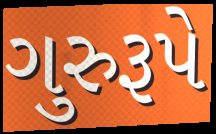
ગુરુરૂપે